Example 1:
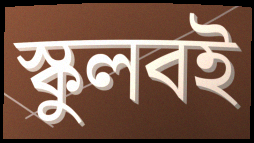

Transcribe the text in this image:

স্কুলবই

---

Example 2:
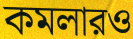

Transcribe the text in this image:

কমলারও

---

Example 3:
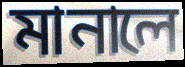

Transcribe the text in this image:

মানালে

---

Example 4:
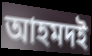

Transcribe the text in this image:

আহমদই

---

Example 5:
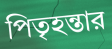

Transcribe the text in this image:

পিতৃহন্তার